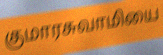
குமாரசுவாமியை